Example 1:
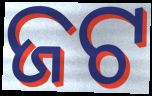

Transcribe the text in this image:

ଜଟ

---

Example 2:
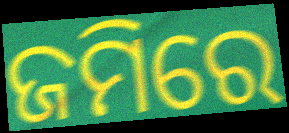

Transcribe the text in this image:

ଜମିରେ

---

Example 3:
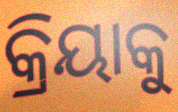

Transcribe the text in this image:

କ୍ରିୟାକୁ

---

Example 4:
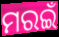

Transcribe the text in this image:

ମରଇଁ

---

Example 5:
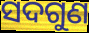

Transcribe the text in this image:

ସଦଗୁଣ